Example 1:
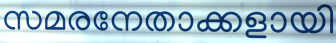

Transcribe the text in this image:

സമരനേതാക്കളായി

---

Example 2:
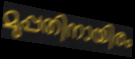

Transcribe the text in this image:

മുപ്പതിനായിരം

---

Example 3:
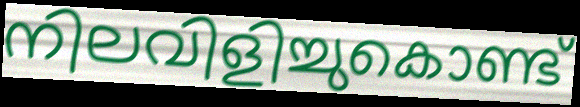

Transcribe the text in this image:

നിലവിളിച്ചുകൊണ്ട്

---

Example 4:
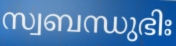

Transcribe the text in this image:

സ്വബന്ധുഭിഃ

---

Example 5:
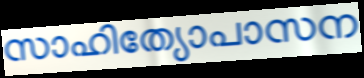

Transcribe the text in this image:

സാഹിത്യോപാസന